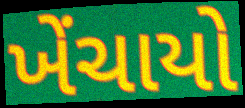
ખેંચાયો